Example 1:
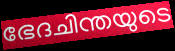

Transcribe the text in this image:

ഭേദചിന്തയുടെ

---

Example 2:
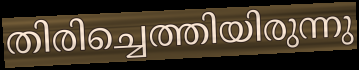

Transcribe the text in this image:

തിരിച്ചെത്തിയിരുന്നു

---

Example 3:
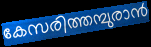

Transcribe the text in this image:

കേസരിത്തമ്പുരാൻ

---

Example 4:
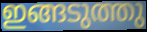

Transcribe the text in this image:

ഇങ്ങടുത്തു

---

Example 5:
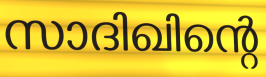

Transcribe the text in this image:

സാദിഖിന്റെ